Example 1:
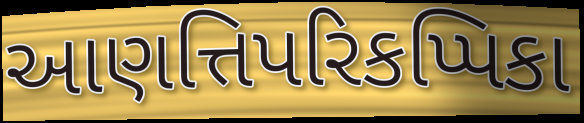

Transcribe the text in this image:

આણત્તિપરિકપ્પિકા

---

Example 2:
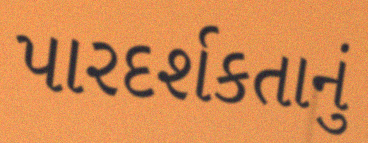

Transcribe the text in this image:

પારદર્શકતાનું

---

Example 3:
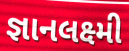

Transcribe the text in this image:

જ્ઞાનલક્ષ્મી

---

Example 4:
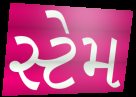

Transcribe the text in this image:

સ્ટેમ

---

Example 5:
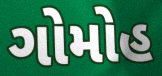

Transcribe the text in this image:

ગોમોહ